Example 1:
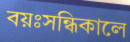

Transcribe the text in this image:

বয়ঃসন্ধিকালে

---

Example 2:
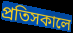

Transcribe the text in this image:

প্রতিসকালে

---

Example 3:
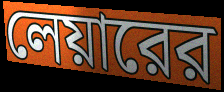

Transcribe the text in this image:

লেয়ারের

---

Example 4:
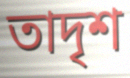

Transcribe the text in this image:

তাদৃশ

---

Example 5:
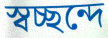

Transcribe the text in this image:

স্বচ্ছন্দে